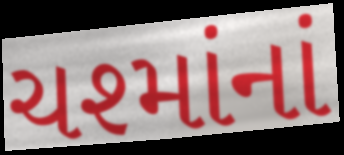
ચશ્માંનાં